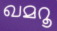
ഖമറൂ